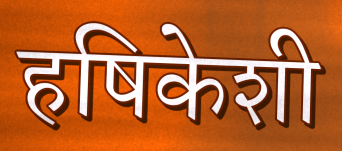
हषिकेशी